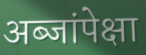
अब्जांपेक्षा